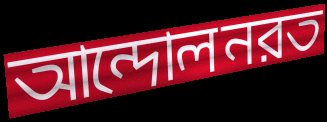
আন্দোলনরত